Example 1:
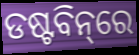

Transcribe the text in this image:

ଡଷ୍ଟବିନ୍‌ରେ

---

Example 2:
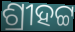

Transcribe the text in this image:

ଶ୍ରୀହଟ୍ଟ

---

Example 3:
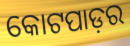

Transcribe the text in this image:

କୋଟପାଡ଼ର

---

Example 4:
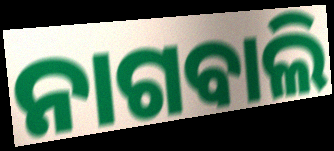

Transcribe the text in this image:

ନାଗବାଲି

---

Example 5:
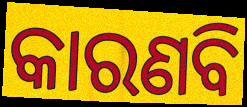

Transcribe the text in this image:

କାରଣବି